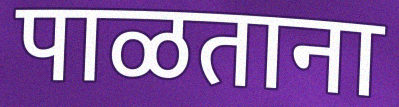
पाळताना